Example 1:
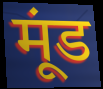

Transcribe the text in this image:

मूंड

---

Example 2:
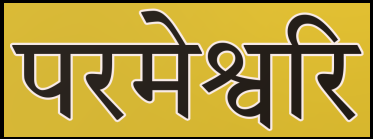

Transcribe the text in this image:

परमेश्वरि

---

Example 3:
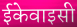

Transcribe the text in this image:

ईकेवाइसी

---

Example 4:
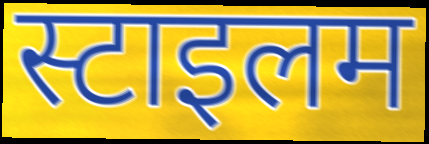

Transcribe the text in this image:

स्टाइलम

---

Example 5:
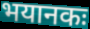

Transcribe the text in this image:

भयानकः